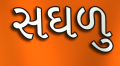
સઘળુ